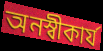
অনস্বীকাৰ্য